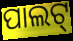
ପାଲଟ୍